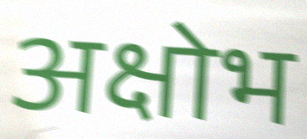
अक्षोभ